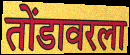
तोंडावरला